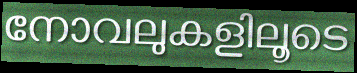
നോവലുകളിലൂടെ